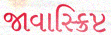
જાવાસ્ક્રિપ્ટ